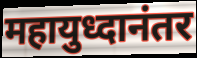
महायुध्दानंतर